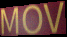
MOV